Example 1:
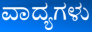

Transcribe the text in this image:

ವಾದ್ಯಗಳು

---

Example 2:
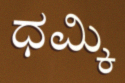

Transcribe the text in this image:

ಧಮ್ಕಿ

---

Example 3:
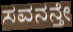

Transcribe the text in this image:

ಸವನನ್ತೇ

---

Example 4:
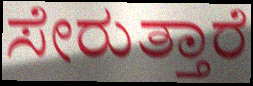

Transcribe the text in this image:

ಸೇರುತ್ತಾರೆ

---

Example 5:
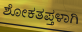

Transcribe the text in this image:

ಶೋಕತಪ್ತಳಾಗಿ